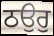
ਠਉਰੁ